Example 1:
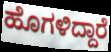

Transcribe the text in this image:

ಹೊಗಳಿದ್ದಾರೆ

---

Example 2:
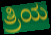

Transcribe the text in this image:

ತ್ರಿಯ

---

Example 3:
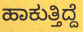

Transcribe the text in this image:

ಹಾಕುತ್ತಿದ್ದೆ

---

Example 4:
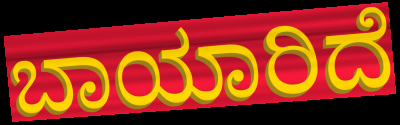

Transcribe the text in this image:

ಬಾಯಾರಿದೆ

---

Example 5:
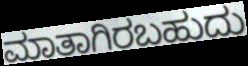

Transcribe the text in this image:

ಮಾತಾಗಿರಬಹುದು